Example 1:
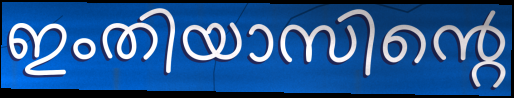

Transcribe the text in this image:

ഇംതിയാസിന്റെ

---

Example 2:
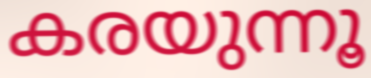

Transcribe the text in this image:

കരയുന്നൂ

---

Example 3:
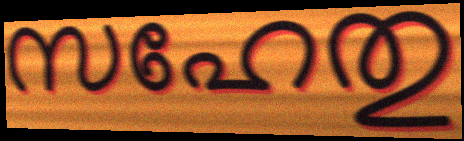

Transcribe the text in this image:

സഹേതു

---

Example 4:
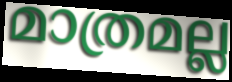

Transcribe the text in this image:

മാത്രമല്ല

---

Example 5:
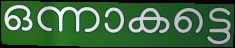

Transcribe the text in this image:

ഒന്നാകട്ടെ